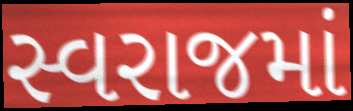
સ્વરાજમાં